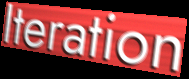
Iteration